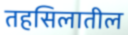
तहसिलातील